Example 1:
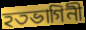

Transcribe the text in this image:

হতভাগিনী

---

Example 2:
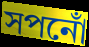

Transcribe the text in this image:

সপনোঁ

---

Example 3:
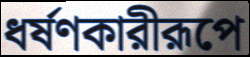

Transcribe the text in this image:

ধর্ষণকারীরূপে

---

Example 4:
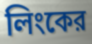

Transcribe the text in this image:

লিংকের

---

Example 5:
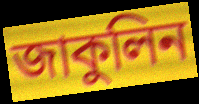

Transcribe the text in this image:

জাকুলিন